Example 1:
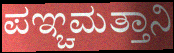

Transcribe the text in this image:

ಪಞ್ಚಮತ್ತಾನಿ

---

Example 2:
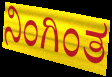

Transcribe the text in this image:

ನಿಂಗಿಂತ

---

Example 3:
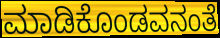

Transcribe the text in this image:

ಮಾಡಿಕೊಂಡವನಂತೆ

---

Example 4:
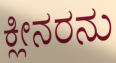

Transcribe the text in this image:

ಕ್ಲೀನರನು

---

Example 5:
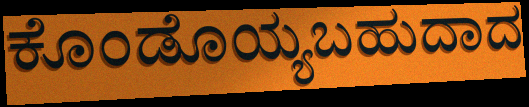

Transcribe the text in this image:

ಕೊಂಡೊಯ್ಯಬಹುದಾದ